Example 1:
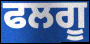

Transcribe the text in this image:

ਫਲਗੂ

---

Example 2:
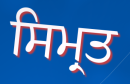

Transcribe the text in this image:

ਸਿਮ੍ਰਤ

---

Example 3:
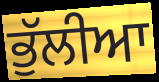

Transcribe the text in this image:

ਭੁੱਲੀਆ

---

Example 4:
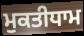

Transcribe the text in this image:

ਮੁਕਤੀਧਾਮ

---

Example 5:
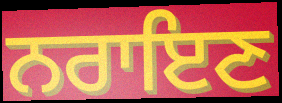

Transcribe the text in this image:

ਨਰਾਇਣ